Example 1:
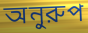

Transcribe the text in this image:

অনুৰুপ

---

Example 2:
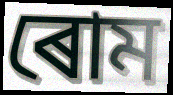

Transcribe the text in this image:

ৰোম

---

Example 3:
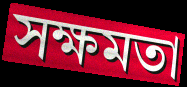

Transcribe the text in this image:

সক্ষমতা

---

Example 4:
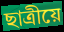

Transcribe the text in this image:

ছাত্ৰীয়ে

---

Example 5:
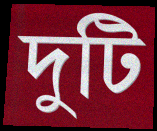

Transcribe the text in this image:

দুটি